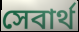
সেবার্থ